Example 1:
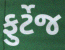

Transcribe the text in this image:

ફુર્ટેજ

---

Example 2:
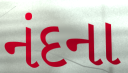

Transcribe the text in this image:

નંદના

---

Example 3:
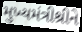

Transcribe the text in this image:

મુખ્યમંત્રીશ્રીને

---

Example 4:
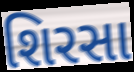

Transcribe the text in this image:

શિરસા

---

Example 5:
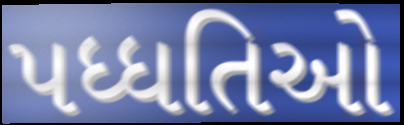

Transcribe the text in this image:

પધ્ધતિઓ